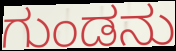
ಗುಂಡನು